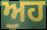
ਅੁਹ